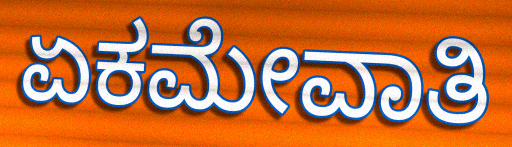
ಏಕಮೇವಾತಿ